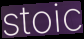
stoic